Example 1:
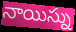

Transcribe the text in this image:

నాయిస్ను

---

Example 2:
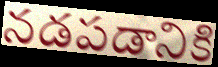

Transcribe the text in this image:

నడపడానికి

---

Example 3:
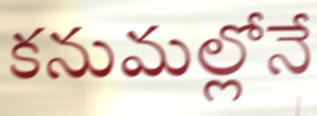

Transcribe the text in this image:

కనుమల్లోనే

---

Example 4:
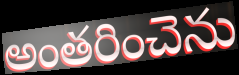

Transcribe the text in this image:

అంతరించెను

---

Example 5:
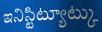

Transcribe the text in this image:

ఇనిస్టిట్యూట్కు